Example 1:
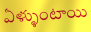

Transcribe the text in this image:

ఏళ్ళుంటాయి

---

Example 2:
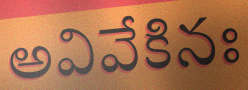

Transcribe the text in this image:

అవివేకినః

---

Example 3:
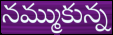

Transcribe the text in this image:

నమ్ముకున్న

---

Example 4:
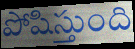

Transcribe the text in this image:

పోషిస్తుంది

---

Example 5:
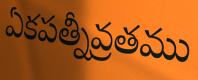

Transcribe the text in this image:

ఏకపత్నీవ్రతము